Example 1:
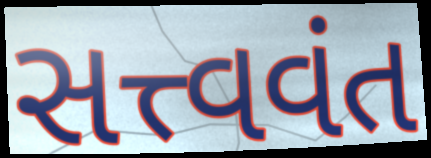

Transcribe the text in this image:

સત્ત્વવંત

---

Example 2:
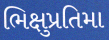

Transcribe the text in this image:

ભિક્ષુપ્રતિમા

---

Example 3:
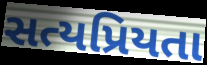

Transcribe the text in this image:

સત્યપ્રિયતા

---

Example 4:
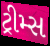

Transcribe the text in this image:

ટ્રીમ્સ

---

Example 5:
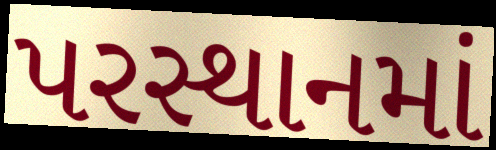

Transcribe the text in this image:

પરસ્થાનમાં